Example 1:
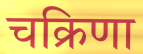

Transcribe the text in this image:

चक्रिणा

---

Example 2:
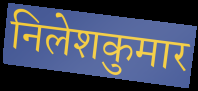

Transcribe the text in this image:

निलेशकुमार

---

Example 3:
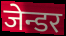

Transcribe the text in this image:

जेन्डर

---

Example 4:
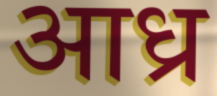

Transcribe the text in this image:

आध्र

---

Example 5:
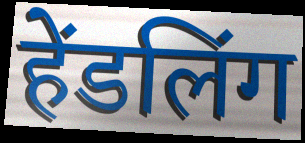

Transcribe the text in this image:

हेंडलिंग